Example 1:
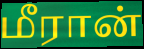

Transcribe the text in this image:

மீரான்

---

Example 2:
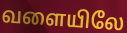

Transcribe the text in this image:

வளையிலே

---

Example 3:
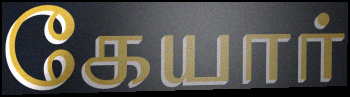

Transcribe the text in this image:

கேயார்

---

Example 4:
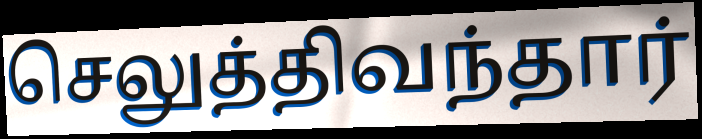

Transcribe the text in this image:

செலுத்திவந்தார்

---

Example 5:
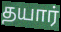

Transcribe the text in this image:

தயார்